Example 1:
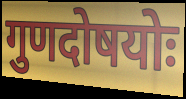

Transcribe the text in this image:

गुणदोषयोः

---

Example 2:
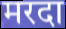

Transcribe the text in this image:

मरदा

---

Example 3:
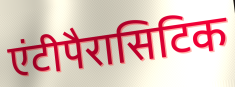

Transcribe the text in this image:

एंटीपैरासिटिक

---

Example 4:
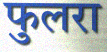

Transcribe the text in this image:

फुलरा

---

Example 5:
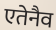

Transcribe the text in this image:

एतेनैव